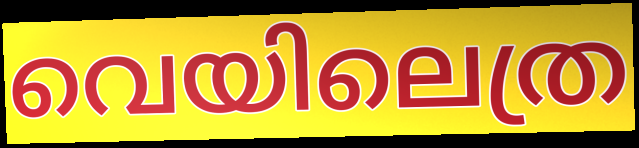
വെയിലെത്ര